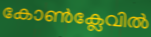
കോൺക്ലേവിൽ